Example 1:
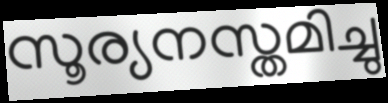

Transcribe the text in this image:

സൂര്യനസ്തമിച്ചു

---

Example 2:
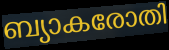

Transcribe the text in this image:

ബ്യാകരോതി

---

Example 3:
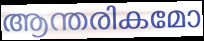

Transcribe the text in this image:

ആന്തരികമോ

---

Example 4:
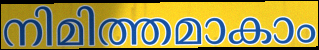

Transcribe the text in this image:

നിമിത്തമാകാം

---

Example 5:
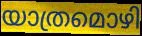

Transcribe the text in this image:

യാത്രമൊഴി